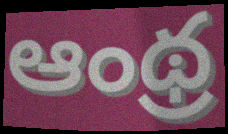
ఆంథ్ర